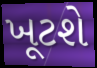
ખૂટશે